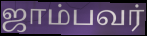
ஜாம்பவர்